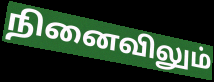
நினைவிலும்